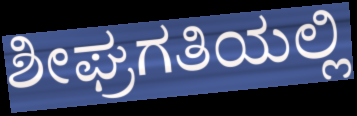
ಶೀಘ್ರಗತಿಯಲ್ಲಿ